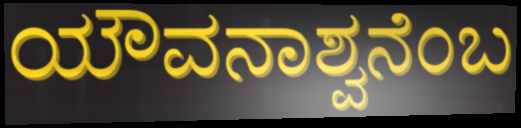
ಯೌವನಾಶ್ವನೆಂಬ